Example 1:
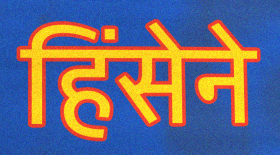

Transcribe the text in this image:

हिंसेने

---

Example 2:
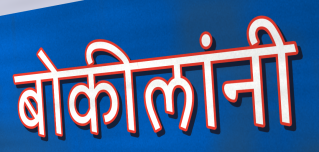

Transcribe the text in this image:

बोकीलांनी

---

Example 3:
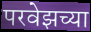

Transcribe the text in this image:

परवेझच्या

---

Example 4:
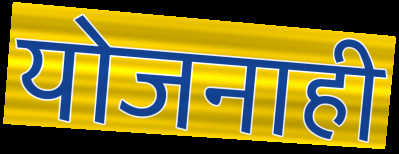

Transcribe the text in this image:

योजनाही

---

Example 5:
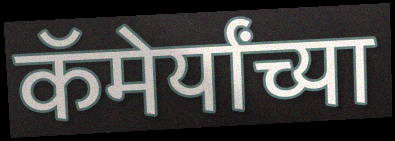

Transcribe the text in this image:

कॅमेर्यांच्या